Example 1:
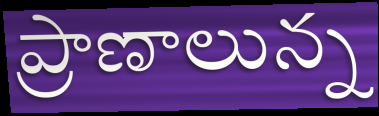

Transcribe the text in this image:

ప్రాణాలున్న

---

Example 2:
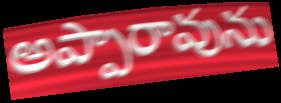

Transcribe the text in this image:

అప్పారావును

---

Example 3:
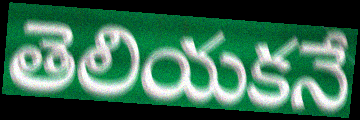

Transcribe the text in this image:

తెలియకనే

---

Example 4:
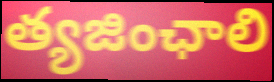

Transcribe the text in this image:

త్యజింఛాలి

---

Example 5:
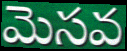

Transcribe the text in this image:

మెసవ